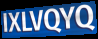
IXLVQYQ